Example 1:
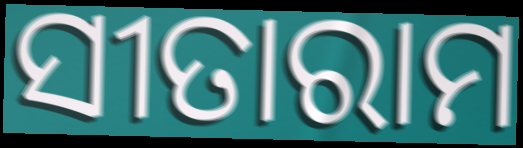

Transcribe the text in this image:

ସୀତାରାମ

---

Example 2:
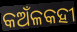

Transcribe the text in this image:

କଅଁଳକହୀ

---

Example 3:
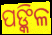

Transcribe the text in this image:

ପଙ୍କିଳ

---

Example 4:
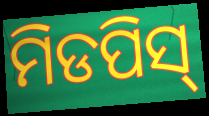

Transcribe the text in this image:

ମିଡପିସ୍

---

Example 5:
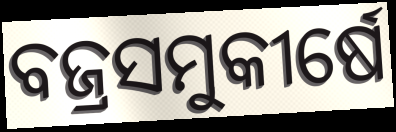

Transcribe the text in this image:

ବଜ୍ରସମୁକୀର୍ଷେ